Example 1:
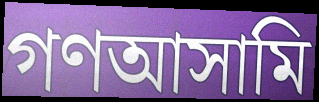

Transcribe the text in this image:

গণআসামি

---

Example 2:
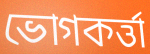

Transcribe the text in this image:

ভোগকর্ত্তা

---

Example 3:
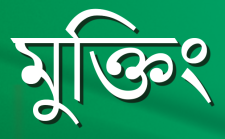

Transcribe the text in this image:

মুক্তিং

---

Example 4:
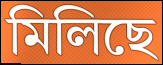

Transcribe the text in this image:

মিলিছে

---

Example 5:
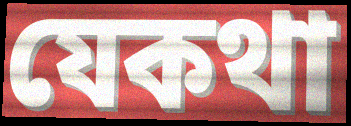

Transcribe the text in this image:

যেকথা